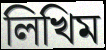
লিখিম